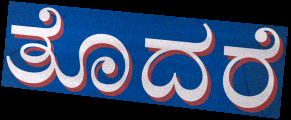
ತೊದರೆ